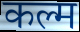
कल्म